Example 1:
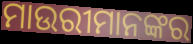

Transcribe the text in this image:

ମାଉରୀମାନଙ୍କର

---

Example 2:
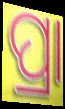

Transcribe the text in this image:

ପ୍ରା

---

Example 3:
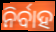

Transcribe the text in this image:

ନିର୍ବାହ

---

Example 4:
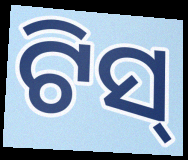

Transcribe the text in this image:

ଟିସ୍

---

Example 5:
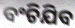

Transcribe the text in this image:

ବଂଚିଯିବ